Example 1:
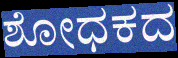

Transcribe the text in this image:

ಶೋಧಕದ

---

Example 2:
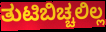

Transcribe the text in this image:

ತುಟಿಬಿಚ್ಚಲಿಲ್ಲ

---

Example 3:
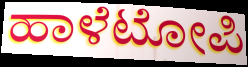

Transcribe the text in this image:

ಹಾಳೆಟೋಪಿ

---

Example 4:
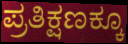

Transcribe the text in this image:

ಪ್ರತಿಕ್ಷಣಕ್ಕೂ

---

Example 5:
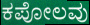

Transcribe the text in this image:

ಕಪೋಲವು